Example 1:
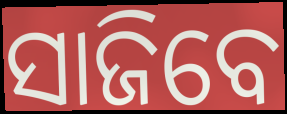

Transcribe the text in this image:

ସାଜିବେ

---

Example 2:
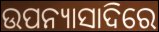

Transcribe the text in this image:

ଉପନ୍ୟାସାଦିରେ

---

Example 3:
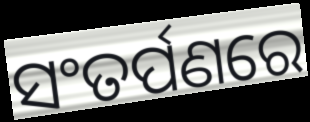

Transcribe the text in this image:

ସଂତର୍ପଣରେ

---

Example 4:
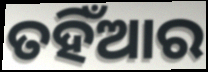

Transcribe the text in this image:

ତହିଁଆର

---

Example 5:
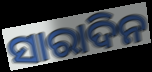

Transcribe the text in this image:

ସାରାଦିନ